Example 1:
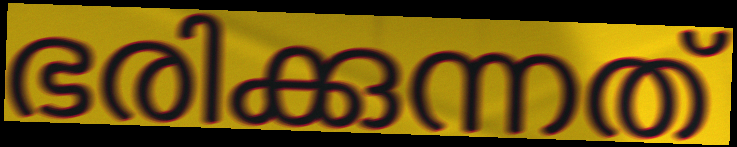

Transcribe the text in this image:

ഭരിക്കുന്നത്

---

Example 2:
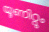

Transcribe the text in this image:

യൂണിറ്റും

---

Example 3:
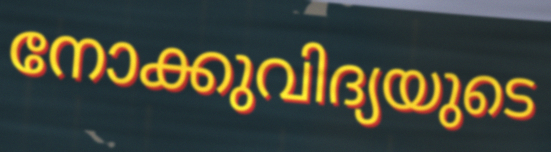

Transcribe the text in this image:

നോക്കുവിദ്യയുടെ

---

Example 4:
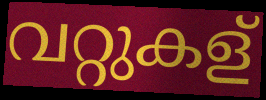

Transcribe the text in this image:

വറ്റുകള്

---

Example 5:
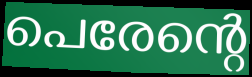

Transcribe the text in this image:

പെരേന്റെ